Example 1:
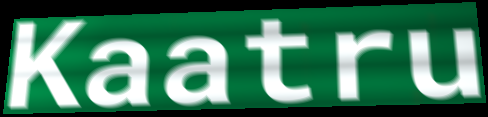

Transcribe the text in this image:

Kaatru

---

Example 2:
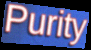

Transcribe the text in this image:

Purity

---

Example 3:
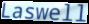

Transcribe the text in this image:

Laswell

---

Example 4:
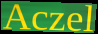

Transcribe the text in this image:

Aczel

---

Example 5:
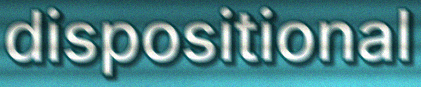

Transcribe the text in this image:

dispositional